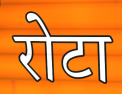
रोटा